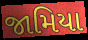
જામિયા